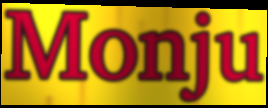
Monju